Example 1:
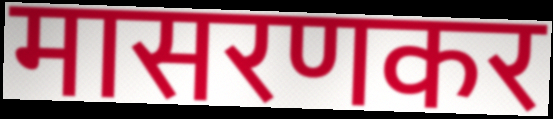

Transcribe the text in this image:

मासरणकर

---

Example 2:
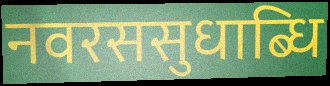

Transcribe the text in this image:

नवरससुधाब्धि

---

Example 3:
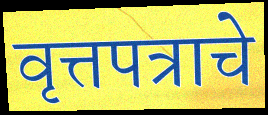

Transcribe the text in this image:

वृत्तपत्राचे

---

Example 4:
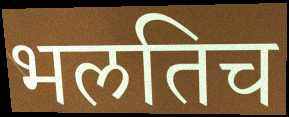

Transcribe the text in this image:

भलतिच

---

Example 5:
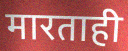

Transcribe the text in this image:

मारताही